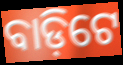
ବାଡ଼ିଟେ